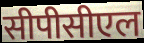
सीपीसीएल